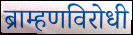
ब्राम्हणविरोधी